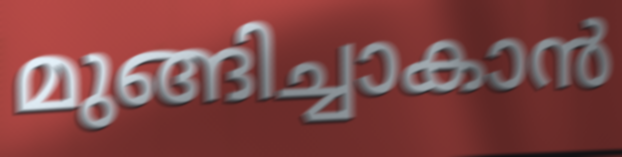
മുങ്ങിച്ചാകാൻ